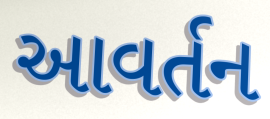
આવર્તન